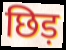
छिड़